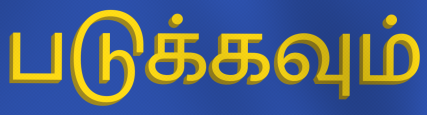
படுக்கவும்